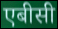
एबीसी